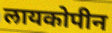
लायकोपीन